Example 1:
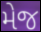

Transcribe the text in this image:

મેજ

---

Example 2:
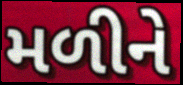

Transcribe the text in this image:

મળીને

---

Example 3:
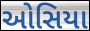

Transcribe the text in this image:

ઓસિયા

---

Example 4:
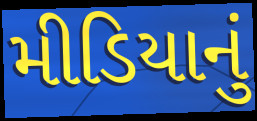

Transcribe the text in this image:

મીડિયાનું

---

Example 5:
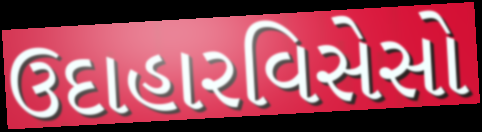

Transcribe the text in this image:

ઉદાહારવિસેસો